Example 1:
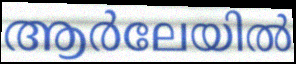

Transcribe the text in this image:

ആർലേയിൽ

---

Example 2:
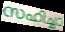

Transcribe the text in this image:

സഹിച്ചാ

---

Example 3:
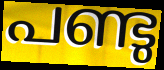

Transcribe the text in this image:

പണ്ടു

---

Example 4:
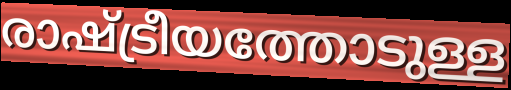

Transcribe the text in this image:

രാഷ്ട്രീയത്തോടുള്ള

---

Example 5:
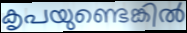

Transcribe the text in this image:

കൃപയുണ്ടെങ്കിൽ